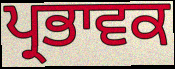
ਪ੍ਰਭਾਵਕ